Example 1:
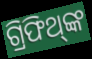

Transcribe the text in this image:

ଗ୍ରିଫିଥ୍‌ଙ୍କ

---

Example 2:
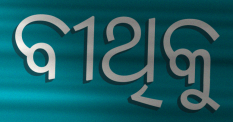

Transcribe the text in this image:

ବୀଥିକୁ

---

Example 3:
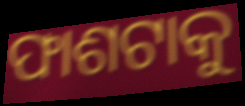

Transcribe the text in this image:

ଫାଶଟାକୁ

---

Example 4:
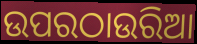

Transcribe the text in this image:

ଉପରଠାଉରିଆ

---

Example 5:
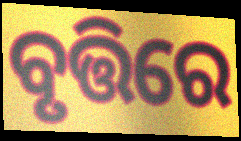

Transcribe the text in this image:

ବୃତ୍ତିରେ